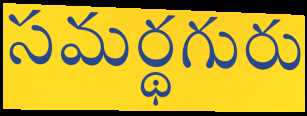
సమర్థగురు